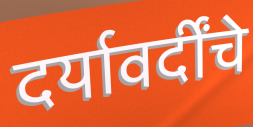
दर्यावर्दींचे